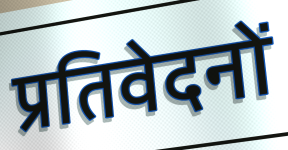
प्रतिवेदनों